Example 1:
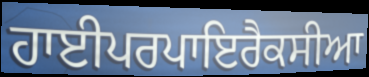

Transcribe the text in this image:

ਹਾਈਪਰਪਾਇਰੈਕਸੀਆ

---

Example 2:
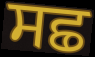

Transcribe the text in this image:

ਸਛ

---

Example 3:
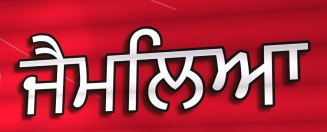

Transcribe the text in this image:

ਜੈਮਲਿਆ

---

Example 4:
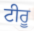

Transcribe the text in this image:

ਟੀਰੂ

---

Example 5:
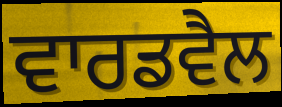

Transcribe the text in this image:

ਵਾਰਡਵੈਲ